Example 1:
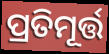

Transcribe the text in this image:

ପ୍ରତିମୂର୍ତ୍ତ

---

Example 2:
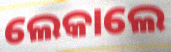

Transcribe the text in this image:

ଲେକାଲେ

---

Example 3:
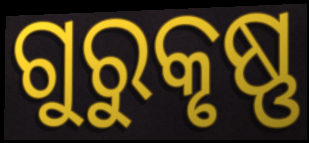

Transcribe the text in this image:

ଗୁରୁକୃଷ୍ଣ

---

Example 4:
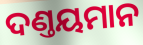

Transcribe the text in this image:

ଦଣ୍ତୟମାନ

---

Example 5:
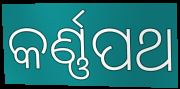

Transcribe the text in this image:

କର୍ଣ୍ଣପଥ